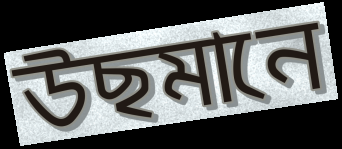
উছমানে